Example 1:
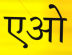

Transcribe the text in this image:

एओ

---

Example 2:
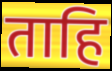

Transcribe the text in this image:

ताहि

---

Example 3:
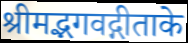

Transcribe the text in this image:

श्रीमद्भगवद्गीताके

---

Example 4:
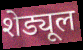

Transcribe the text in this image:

शेड्यूल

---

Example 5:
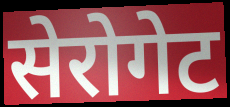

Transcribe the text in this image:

सेरोगेट